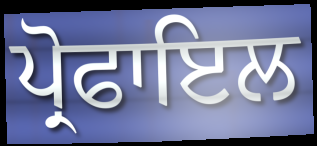
ਪ੍ਰੋਫਾਇਲ